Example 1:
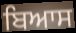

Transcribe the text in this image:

ਬਿਆਸ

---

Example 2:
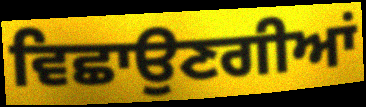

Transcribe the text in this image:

ਵਿਛਾਉਣਗੀਆਂ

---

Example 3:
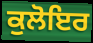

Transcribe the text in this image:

ਕੁਲੋਇਰ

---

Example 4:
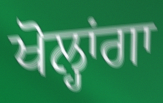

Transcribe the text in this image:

ਖੋਲ੍ਹਾਂਗਾ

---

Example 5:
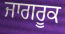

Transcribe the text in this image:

ਜਾਗਰੂਕ